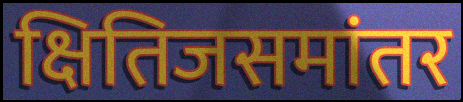
क्षितिजसमांतर